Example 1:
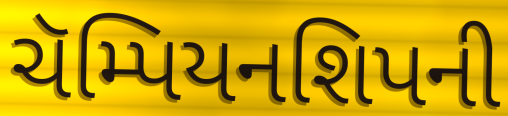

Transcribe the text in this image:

ચૅમ્પિયનશિપની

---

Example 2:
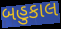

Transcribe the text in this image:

બહુકાલ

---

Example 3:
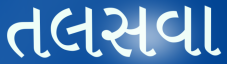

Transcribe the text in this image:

તલસવા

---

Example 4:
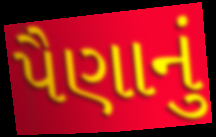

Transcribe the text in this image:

પૈણાનું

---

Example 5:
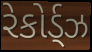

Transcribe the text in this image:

રેકોર્ડ્ઝ